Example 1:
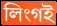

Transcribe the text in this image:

লিংগই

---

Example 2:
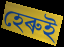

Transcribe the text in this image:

হেৰুই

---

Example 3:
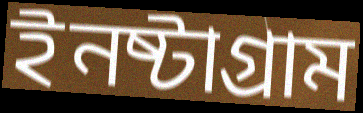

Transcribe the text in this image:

ইনষ্টাগ্ৰাম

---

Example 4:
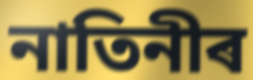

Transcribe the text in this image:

নাতিনীৰ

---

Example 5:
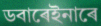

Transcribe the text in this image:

ডবাৰেইনাৰে